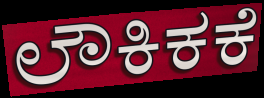
ಲೌಕಿಕಕೆ